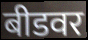
बीडवर